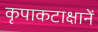
कृपाकटाक्षानें